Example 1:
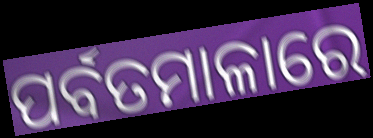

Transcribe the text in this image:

ପର୍ବତମାଳାରେ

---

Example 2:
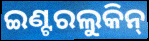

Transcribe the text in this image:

ଇଣ୍ଟରଲୁକିନ୍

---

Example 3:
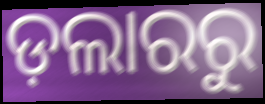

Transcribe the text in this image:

ଡ଼ଲାରରୁ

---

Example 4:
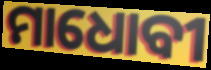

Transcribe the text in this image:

ମାଧୋବୀ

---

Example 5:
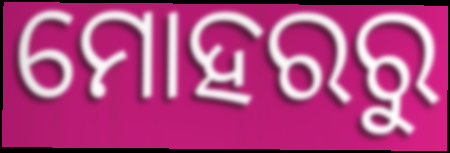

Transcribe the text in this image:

ମୋହରରୁ